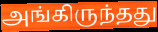
அங்கிருந்தது